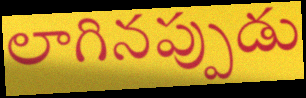
లాగినప్పుడు